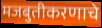
मजबुतीकरणाचे